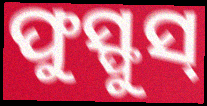
ଫୁସ୍ଫୁସ୍